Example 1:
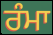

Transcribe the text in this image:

ਰੰਮਾ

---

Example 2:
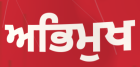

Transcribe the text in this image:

ਅਭਿਮੁਖ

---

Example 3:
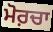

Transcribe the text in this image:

ਮੋਰ਼ਚਾ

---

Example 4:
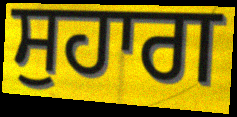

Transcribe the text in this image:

ਸੁਹਾਗ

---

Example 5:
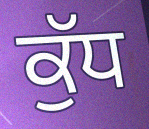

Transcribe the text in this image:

ਕੁੱਧ